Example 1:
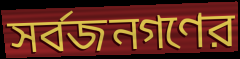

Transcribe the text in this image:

সর্বজনগণের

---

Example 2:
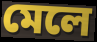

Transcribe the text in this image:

মেলে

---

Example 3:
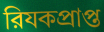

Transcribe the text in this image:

রিযকপ্রাপ্ত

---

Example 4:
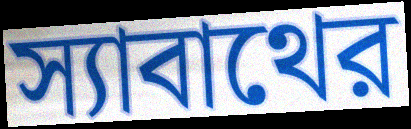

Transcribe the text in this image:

স্যাবাথের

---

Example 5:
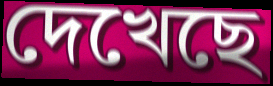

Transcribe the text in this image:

দেখেছে